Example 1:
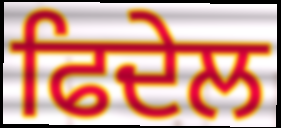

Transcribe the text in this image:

ਫਿਦੇਲ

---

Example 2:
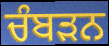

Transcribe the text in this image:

ਚੰਬੜਨ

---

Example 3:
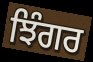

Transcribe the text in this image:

ਝਿੰਗਰ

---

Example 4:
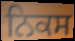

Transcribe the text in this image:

ਨਿਕਸ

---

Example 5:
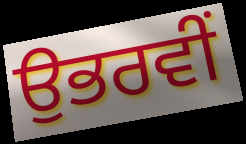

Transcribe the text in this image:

ਉਭਰਵੀਂ